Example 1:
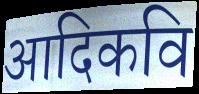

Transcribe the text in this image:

आदिकवि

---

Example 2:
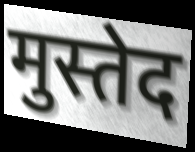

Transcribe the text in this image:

मुस्तेद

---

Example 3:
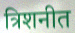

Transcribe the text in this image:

त्रिशनीत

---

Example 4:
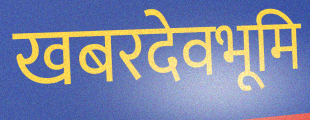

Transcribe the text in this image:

खबरदेवभूमि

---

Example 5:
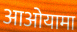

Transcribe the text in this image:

आओयामा